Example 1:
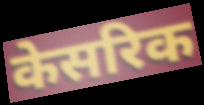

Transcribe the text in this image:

केसरिक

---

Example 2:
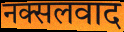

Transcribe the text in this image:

नक्सलवाद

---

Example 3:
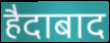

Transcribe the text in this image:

हैदाबाद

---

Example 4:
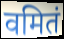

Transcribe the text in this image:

वमितं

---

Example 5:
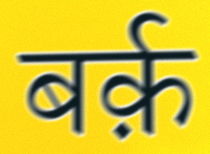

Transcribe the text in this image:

बर्क़